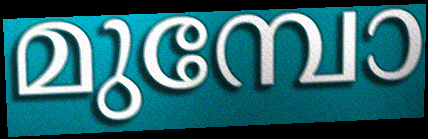
മുമ്പോ